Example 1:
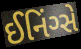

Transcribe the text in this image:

ઈનિંગ્સે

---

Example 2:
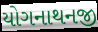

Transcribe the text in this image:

યોગનાથનજી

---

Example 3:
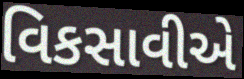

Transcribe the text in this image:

વિકસાવીએ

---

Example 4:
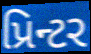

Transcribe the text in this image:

પ્રિન્ટર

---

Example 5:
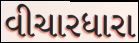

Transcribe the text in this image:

વીચારધારા